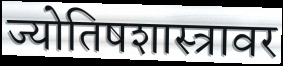
ज्योतिषशास्त्रावर